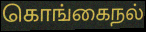
கொங்கைநல்